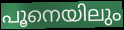
പൂനെയിലും